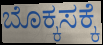
ಬೊಕ್ಕಸಕ್ಕೆ